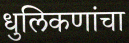
धुलिकणांचा